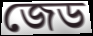
জেড